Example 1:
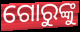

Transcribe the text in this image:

ଗୋରୁଙ୍କୁ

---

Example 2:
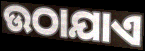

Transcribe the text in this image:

ଉଠାଯାଏ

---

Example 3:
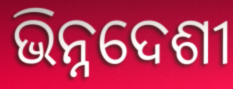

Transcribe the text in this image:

ଭିନ୍ନଦେଶୀ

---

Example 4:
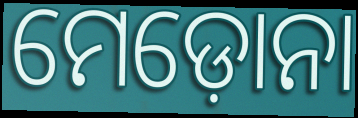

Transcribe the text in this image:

ମେଡ଼ୋନା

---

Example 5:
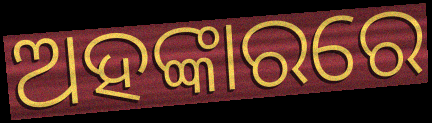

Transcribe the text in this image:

ଅହଙ୍କାରରେ